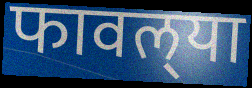
फावल्या